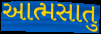
આત્મસાતુ